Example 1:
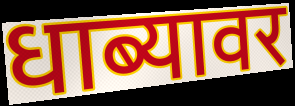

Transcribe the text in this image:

धाब्यावर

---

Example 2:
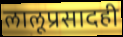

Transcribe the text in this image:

लालूप्रसादही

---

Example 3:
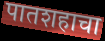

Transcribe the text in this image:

पातशहाचा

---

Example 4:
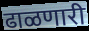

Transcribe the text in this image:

ढाळणारी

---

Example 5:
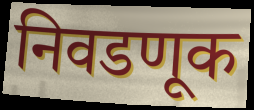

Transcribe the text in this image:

निवडणूक